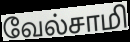
வேல்சாமி